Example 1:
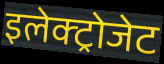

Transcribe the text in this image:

इलेक्ट्रोजेट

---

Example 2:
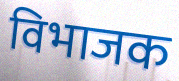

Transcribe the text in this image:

विभाजक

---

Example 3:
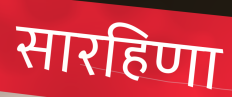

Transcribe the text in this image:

सारहिणा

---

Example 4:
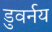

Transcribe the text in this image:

डुवर्नय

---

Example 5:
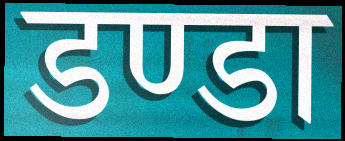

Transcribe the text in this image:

डण्डा